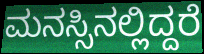
ಮನಸ್ಸಿನಲ್ಲಿದ್ದರೆ